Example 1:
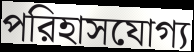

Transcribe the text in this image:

পরিহাসযোগ্য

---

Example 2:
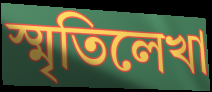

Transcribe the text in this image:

স্মৃতিলেখা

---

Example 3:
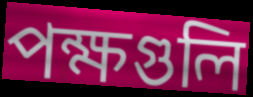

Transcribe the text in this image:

পক্ষগুলি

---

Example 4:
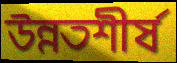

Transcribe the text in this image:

উন্নতশীর্ষ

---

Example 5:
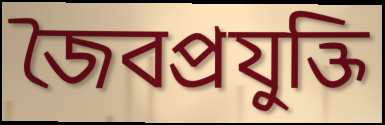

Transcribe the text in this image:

জৈবপ্রযুক্তি